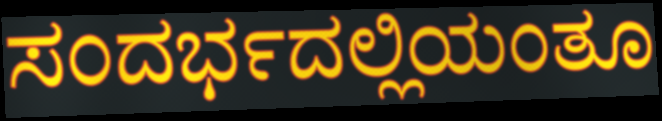
ಸಂದರ್ಭದಲ್ಲಿಯಂತೂ